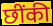
छींकी